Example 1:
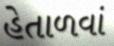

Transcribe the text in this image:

હેતાળવાં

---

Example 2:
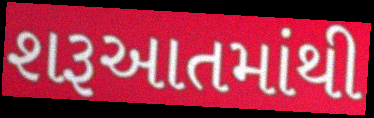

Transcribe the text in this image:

શરૂઆતમાંથી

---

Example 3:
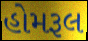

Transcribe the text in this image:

હોમરૂલ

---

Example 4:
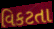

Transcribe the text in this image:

વિકટતા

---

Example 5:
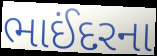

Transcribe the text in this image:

ભાઈંદરના